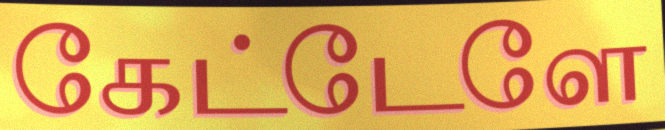
கேட்டேளே